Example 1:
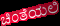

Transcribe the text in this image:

ಚಿಂತೆಯಲಿ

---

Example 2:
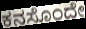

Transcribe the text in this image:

ಕನಸೊಂದೇ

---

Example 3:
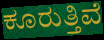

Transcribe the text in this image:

ಕೂರುತ್ತಿವೆ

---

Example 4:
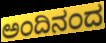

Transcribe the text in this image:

ಅಂದಿನಂದ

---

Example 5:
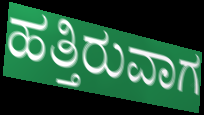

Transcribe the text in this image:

ಹತ್ತಿರುವಾಗ